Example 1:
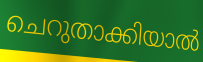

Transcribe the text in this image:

ചെറുതാക്കിയാൽ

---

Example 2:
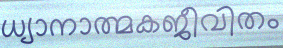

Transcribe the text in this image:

ധ്യാനാത്മകജീവിതം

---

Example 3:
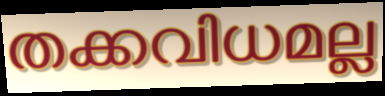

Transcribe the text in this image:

തക്കവിധമല്ല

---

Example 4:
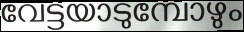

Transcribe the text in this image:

വേട്ടയാടുമ്പോഴും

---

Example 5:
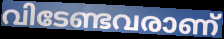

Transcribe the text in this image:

വിടേണ്ടവരാണ്